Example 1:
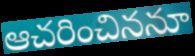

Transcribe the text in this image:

ఆచరించిననూ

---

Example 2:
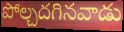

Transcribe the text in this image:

పోల్చదగినవాడు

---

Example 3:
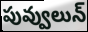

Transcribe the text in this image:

పువ్వులున్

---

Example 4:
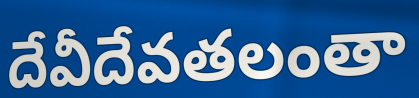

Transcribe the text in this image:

దేవీదేవతలంతా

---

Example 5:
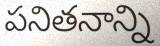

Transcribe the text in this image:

పనితనాన్ని